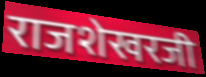
राजशेखरजी